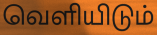
வெளியிடும்